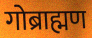
गोब्राह्मण